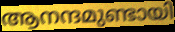
ആനന്ദമുണ്ടായി